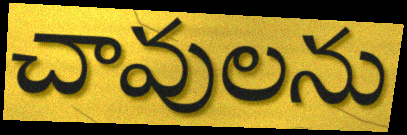
చావులను